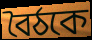
বৈঠকে